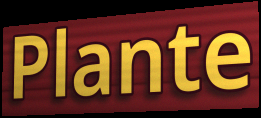
Plante